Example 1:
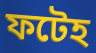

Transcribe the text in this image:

ফটেহ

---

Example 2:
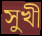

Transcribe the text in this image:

সুখী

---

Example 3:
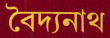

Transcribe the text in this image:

বৈদ্যনাথ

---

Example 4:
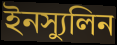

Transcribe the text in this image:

ইনস্যুলিন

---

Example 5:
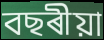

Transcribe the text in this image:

বছৰীয়া